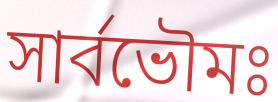
সার্বভৌমঃ